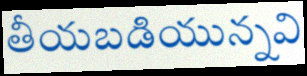
తీయబడియున్నవి